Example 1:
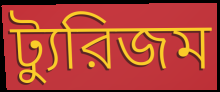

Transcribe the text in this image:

ট্যুরিজম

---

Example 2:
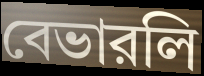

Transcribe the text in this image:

বেভারলি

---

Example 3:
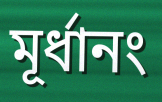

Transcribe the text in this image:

মূর্ধানং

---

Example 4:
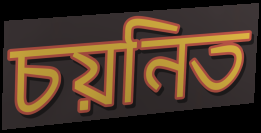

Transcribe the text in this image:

চয়নিত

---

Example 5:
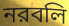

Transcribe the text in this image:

নরবলি